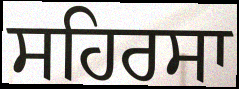
ਸਹਿਰਸਾ